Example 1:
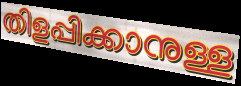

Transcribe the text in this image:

തിളപ്പിക്കാനുള്ള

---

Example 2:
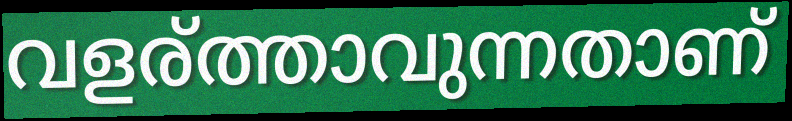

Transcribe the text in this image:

വളര്ത്താവുന്നതാണ്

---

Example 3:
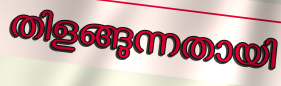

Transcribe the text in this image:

തിളങ്ങുന്നതായി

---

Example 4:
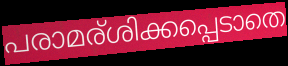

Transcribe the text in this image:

പരാമര്ശിക്കപ്പെടാതെ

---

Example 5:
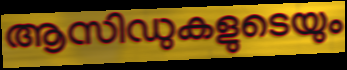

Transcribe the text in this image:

ആസിഡുകളുടെയും